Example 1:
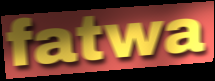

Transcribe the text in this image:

fatwa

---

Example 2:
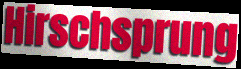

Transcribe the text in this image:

Hirschsprung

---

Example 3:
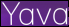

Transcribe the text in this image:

Yava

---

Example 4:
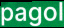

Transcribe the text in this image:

pagol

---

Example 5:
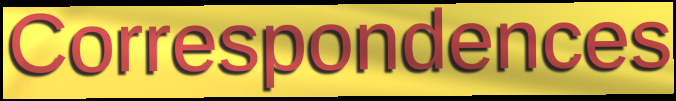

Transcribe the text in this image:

Correspondences